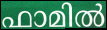
ഫാമിൽ